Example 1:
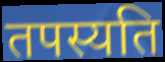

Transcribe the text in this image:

तपस्यति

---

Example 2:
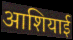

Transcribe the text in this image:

आशियाई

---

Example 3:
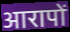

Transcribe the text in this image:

आरापों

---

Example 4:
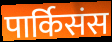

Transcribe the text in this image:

पार्किसंस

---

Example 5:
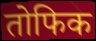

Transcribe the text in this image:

तोफिक